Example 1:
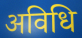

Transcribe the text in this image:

अविधि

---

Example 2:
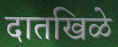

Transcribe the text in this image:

दातखिळे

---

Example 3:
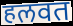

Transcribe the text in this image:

हलवत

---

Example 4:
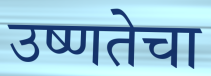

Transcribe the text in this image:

उष्णतेचा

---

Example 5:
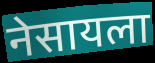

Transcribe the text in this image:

नेसायला